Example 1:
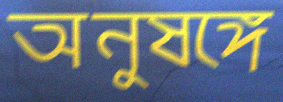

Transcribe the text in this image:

অনুষঙ্গে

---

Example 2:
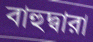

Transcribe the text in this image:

বাহুদ্বারা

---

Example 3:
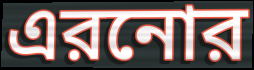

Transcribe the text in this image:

এরনোর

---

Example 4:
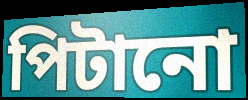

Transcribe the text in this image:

পিটানো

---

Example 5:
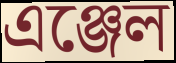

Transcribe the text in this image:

এঞ্জেল